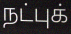
நட்புக்